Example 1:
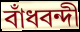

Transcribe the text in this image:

বাঁধবন্দী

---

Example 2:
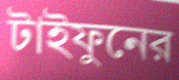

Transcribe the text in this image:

টাইফুনের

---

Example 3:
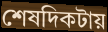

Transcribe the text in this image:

শেষদিকটায়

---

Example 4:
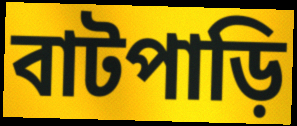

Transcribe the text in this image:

বাটপাড়ি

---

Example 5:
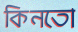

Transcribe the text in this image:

কিনতো